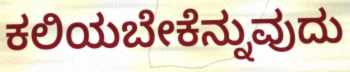
ಕಲಿಯಬೇಕೆನ್ನುವುದು